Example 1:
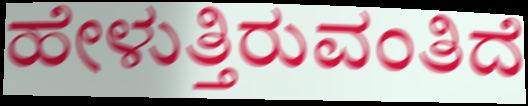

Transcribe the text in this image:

ಹೇಳುತ್ತಿರುವಂತಿದೆ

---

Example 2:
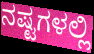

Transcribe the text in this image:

ನಷ್ಟಗಳಲ್ಲಿ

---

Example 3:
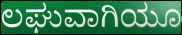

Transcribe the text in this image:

ಲಘುವಾಗಿಯೂ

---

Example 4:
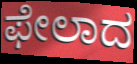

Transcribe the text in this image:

ಫೇಲಾದ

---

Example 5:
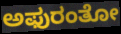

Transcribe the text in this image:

ಅಫುರಂತೋ